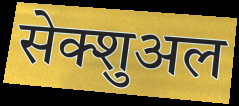
सेक्शुअल